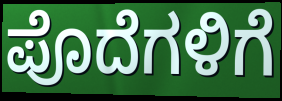
ಪೊದೆಗಳಿಗೆ